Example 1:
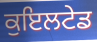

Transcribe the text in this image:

ਕੁਇਲਟੇਡ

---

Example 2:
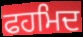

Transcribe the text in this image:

ਫਹਮਿਦ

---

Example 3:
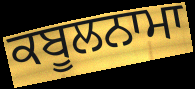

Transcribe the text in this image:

ਕਬੂਲਨਾਮਾ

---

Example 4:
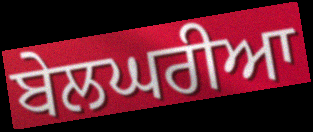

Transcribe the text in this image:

ਬੇਲਘਰੀਆ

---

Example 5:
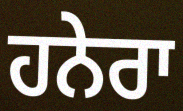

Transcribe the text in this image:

ਹਨੇਰਾ